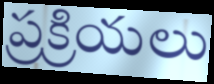
ప్రక్రియలు